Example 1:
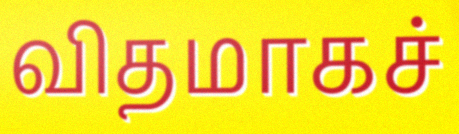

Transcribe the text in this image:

விதமாகச்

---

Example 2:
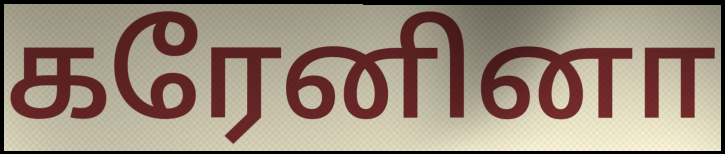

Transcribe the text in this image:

கரேனினா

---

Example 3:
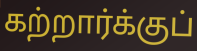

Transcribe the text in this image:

கற்றார்க்குப்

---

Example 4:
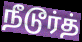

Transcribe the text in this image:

நீடூர்த்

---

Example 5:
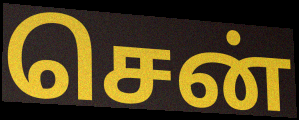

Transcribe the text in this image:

சென்